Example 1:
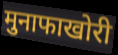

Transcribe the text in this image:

मुनाफाखोरी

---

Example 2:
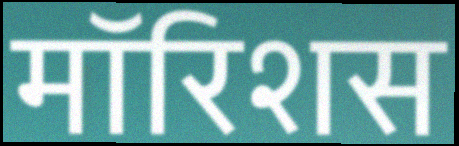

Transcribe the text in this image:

मॉरिशस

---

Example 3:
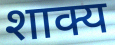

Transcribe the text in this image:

शाक्य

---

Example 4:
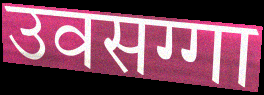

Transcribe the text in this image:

उवसग्गा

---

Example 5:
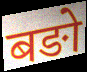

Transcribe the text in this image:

बङो